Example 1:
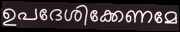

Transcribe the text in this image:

ഉപദേശിക്കേണമേ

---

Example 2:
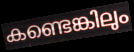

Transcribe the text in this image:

കണ്ടെങ്കിലും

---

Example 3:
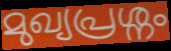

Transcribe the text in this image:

മുഖ്യപ്രശ്നം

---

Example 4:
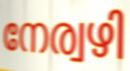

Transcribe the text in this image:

നേര്വഴി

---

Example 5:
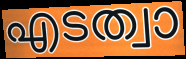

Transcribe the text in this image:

എടത്വാ